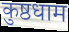
कुष्ठधाम